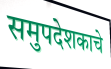
समुपदेशकाचे